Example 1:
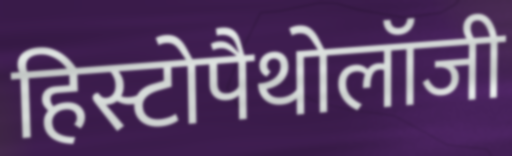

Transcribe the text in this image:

हिस्टोपैथोलॉजी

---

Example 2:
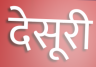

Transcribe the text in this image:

देसूरी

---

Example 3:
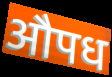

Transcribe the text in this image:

औपध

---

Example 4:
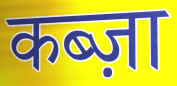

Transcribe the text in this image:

कब्ज़ा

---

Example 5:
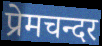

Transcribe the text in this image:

प्रेमचन्दर